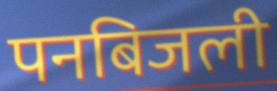
पनबिजली